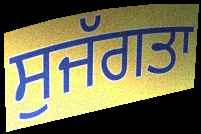
ਸੁਜੱਗਤਾ